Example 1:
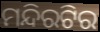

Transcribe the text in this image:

ମନ୍ଦିରଟିର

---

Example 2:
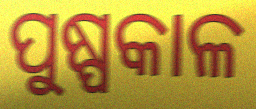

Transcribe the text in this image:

ପୁଷ୍ପକାଳ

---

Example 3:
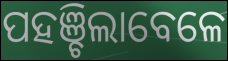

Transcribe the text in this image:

ପହଞ୍ଚିଲାବେଳେ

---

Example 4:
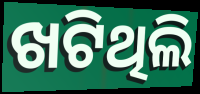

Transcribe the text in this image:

ଖଟିଥିଲି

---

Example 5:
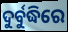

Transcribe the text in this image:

ଦୁର୍ବୁଦ୍ଧିରେ